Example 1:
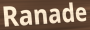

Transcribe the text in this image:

Ranade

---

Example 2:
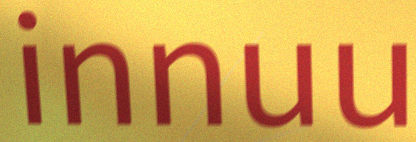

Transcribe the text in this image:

innuu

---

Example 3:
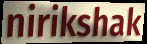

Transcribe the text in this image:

nirikshak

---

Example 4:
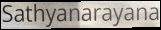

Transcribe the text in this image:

Sathyanarayana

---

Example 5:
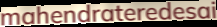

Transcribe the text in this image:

mahendrateredesai